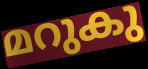
മറുകു